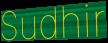
Sudhir